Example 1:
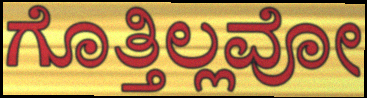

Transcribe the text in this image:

ಗೊತ್ತಿಲ್ಲವೋ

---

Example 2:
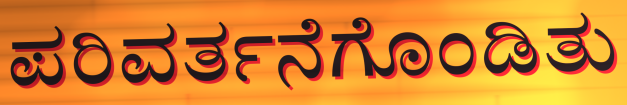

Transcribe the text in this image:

ಪರಿವರ್ತನೆಗೊಂಡಿತು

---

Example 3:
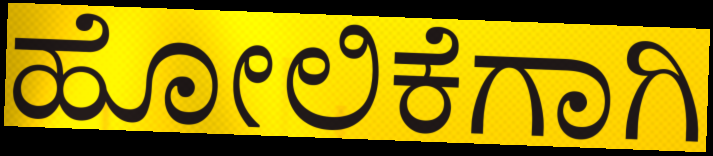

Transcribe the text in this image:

ಹೋಲಿಕೆಗಾಗಿ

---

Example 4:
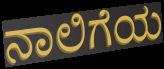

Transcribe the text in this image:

ನಾಲಿಗೆಯ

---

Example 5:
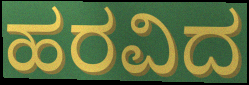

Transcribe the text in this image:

ಹರವಿದ